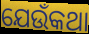
ଯେଉଁକଥା